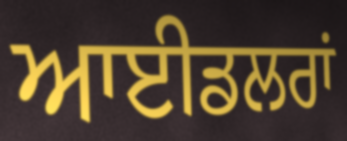
ਆਈਡਲਰਾਂ